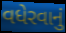
વધેરવાનું